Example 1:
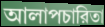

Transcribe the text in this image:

আলাপচারিতা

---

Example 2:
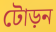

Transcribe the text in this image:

টোড়ন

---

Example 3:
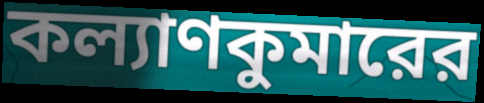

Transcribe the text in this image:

কল্যাণকুমারের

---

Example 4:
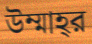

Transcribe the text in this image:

উম্মাহ্‌র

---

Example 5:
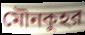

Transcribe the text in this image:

মৌনকুহর